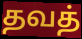
தவத்